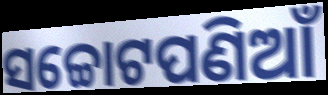
ସଚ୍ଚୋଟପଣିଆଁ